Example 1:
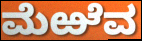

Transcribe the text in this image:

ಮೆಱೆವ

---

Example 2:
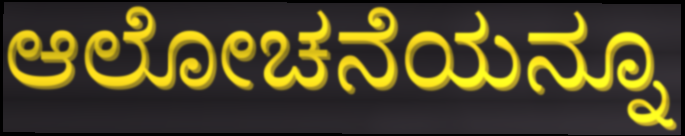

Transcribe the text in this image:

ಆಲೋಚನೆಯನ್ನೂ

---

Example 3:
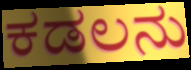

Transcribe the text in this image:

ಕಡಲನು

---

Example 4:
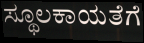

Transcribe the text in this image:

ಸ್ಥೂಲಕಾಯತೆಗೆ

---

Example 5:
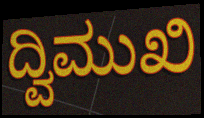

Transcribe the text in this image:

ದ್ವಿಮುಖಿ